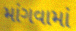
માંગવામાં